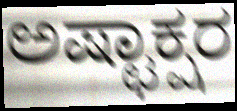
ಅಷ್ಟಾಕ್ಷರ